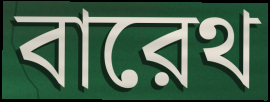
বারেথ